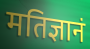
मतिज्ञानं